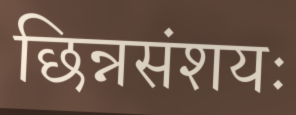
छिन्नसंशयः